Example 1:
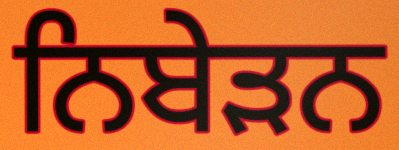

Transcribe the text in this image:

ਨਿਬੇੜਨ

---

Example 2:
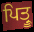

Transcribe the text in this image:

ਪਿਤ੍ਰੂ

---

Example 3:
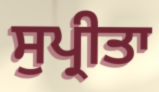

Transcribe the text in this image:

ਸੁਪ੍ਰੀਤਾ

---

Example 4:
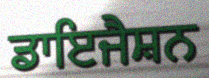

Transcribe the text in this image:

ਡਾਇਜੈਸ਼ਨ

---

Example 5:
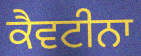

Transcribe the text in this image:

ਕੈਵਟੀਨਾ